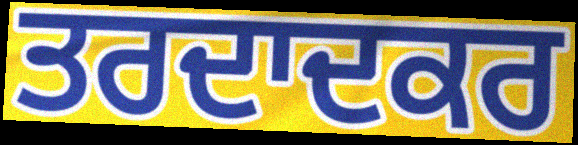
ਤਰਦਾਦਕਰ